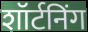
शॉर्टनिंग